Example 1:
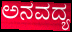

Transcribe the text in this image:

ಅನವದ್ಯ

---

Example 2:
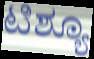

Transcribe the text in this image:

ಟಿಶ್ಯೂ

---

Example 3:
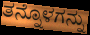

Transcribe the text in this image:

ತನ್ನೊಳಗನ್ನು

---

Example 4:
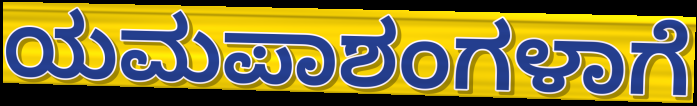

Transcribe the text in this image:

ಯಮಪಾಶಂಗಳಾಗೆ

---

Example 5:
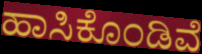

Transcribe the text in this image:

ಹಾಸಿಕೊಂಡಿವೆ